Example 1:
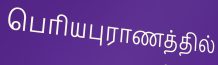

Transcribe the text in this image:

பெரியபுராணத்தில்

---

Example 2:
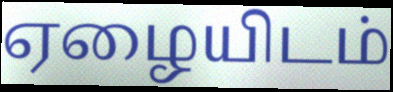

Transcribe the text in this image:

ஏழையிடம்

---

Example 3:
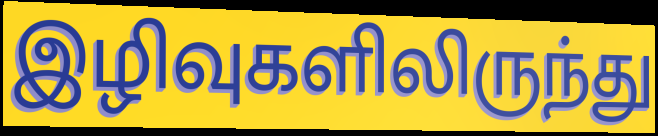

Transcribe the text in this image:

இழிவுகளிலிருந்து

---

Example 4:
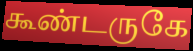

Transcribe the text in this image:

கூண்டருகே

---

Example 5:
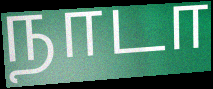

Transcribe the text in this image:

நாடா